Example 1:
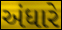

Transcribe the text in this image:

અંધારે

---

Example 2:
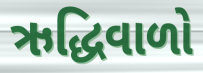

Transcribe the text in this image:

ઋદ્ધિવાળો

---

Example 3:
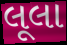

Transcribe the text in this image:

લૂલા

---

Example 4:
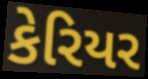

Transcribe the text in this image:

કેરિયર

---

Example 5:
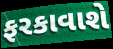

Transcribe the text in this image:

ફરકાવાશે